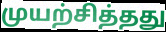
முயற்சித்தது